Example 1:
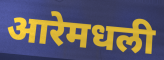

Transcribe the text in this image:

आरेमधली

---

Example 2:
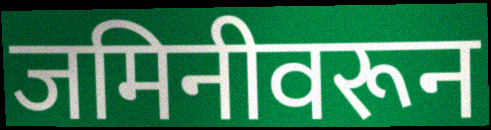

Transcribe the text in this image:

जमिनीवरून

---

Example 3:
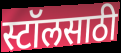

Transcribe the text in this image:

स्टॉलसाठी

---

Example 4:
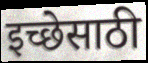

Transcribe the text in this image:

इच्छेसाठी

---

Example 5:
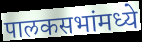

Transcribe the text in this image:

पालकसभांमध्ये